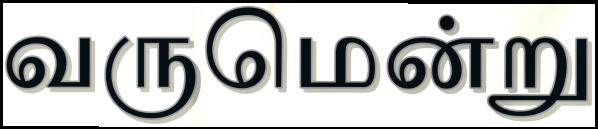
வருமென்று